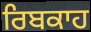
ਰਿਬਕਾਹ